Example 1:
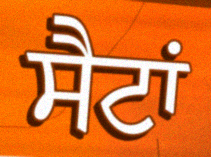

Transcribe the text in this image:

ਸੈਟਾਂ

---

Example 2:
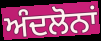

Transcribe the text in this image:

ਅੰਦਲੋਨਾਂ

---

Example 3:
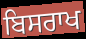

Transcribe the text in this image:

ਬਿਸਰਾਖ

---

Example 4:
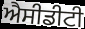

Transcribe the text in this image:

ਐਸੀਡੀਟੀ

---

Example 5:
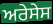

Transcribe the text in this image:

ਅਰੇਸੇਸ